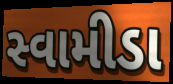
સ્વામીડા